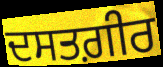
ਦਸਤਗ਼ੀਰ